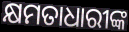
କ୍ଷମତାଧାରୀଙ୍କ